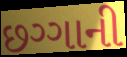
છગ્ગાની